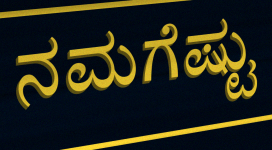
ನಮಗೆಷ್ಟು